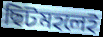
ছিটমহলেই